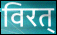
विरत्